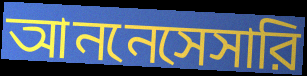
আননেসেসারি